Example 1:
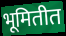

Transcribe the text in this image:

भूमितीत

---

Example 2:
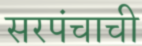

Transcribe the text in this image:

सरपंचाची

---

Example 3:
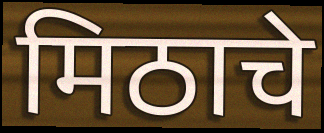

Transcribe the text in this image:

मिठाचे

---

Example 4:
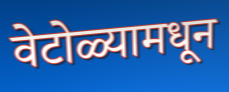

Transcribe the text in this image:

वेटोळ्यामधून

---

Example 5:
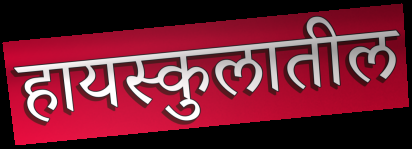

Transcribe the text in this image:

हायस्कुलातील